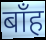
बाँह